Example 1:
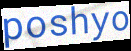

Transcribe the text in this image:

poshyo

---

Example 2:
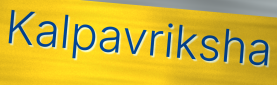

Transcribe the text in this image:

Kalpavriksha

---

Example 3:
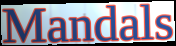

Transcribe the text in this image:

Mandals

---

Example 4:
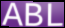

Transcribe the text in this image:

ABL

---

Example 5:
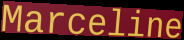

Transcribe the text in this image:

Marceline